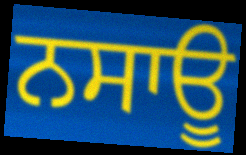
ਨਸਾਊ